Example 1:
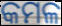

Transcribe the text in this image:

କମଳ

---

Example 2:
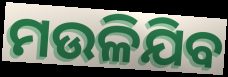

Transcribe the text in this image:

ମଉଳିଯିବ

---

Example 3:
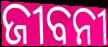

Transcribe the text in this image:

ଜୀବନୀ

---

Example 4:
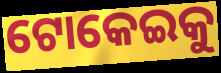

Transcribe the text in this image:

ଟୋକେଇକୁ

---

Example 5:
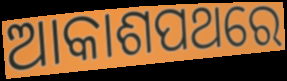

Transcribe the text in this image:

ଆକାଶପଥରେ